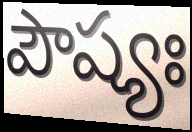
పౌష్యః